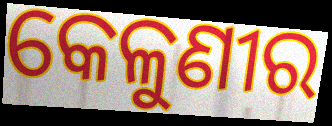
କେଳୁଣୀର